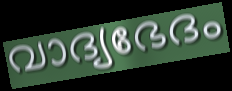
വാദ്യഭേദം